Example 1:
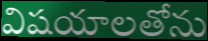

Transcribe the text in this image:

విషయాలతోను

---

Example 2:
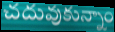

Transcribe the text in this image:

చదువుకున్నాం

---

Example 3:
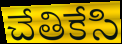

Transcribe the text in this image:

చేతికేసి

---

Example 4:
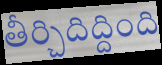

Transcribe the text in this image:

తీర్చిదిద్దింది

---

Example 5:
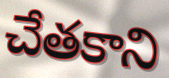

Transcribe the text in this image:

చేతకాని